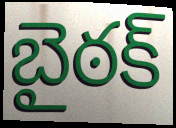
బైఠక్